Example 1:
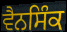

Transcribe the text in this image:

ਵੈਨਸਿੰਕ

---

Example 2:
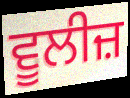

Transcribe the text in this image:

ਵੂਲੀਜ਼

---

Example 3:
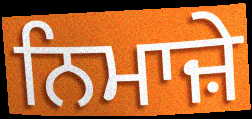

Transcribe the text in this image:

ਨਿਮਾਜ਼ੇ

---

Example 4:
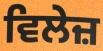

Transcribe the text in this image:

ਵਿਲੇਜ਼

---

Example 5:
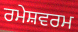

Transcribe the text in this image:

ਰਮੇਸ਼ਵਰਮ